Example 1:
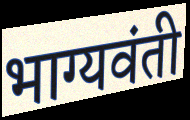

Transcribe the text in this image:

भाग्यवंती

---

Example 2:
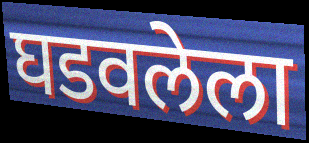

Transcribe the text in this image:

घडवलेला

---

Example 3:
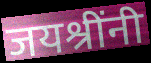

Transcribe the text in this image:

जयश्रींनी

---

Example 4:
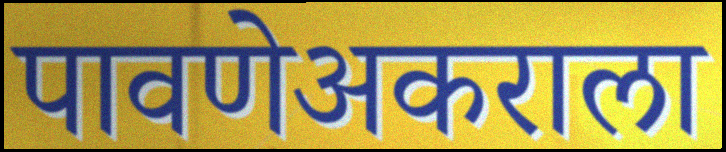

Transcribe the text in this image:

पावणेअकराला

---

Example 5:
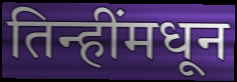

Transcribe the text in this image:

तिन्हींमधून